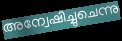
അന്വേഷിച്ചുചെന്നു